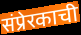
संप्रेरकाची